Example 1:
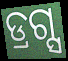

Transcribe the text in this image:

ଡ୍ରଗ୍ସ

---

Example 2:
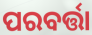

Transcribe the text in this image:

ପରବର୍ତ୍ତା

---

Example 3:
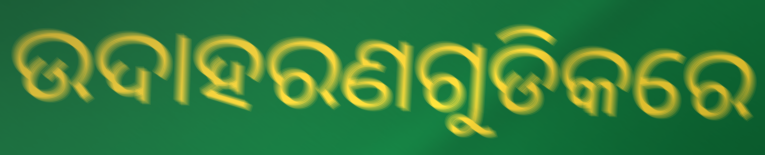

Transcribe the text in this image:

ଉଦାହରଣଗୁଡିକରେ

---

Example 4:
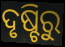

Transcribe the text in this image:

ଦୃଷ୍ଚିରୁ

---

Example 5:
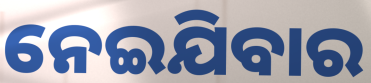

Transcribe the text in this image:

ନେଇଯିବାର